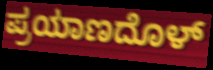
ಪ್ರಯಾಣದೊಳ್